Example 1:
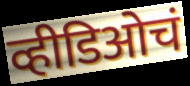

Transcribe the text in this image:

व्हीडिओचं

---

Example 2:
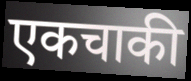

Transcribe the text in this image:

एकचाकी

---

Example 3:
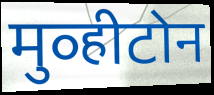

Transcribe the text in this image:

मुव्हीटोन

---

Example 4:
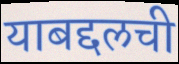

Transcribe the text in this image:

याबद्दलची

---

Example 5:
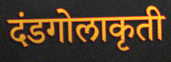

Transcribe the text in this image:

दंडगोलाकृती